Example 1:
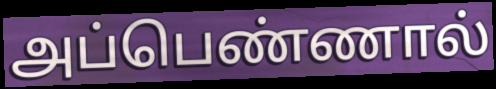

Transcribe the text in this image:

அப்பெண்ணால்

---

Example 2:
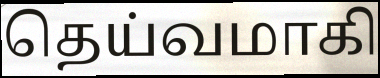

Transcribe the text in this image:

தெய்வமாகி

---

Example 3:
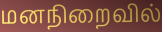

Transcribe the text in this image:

மனநிறைவில்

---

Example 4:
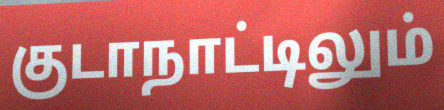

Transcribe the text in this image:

குடாநாட்டிலும்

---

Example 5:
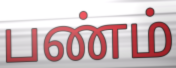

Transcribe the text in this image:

பண்ம்